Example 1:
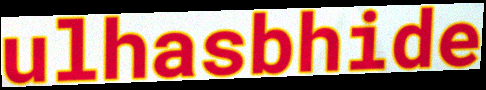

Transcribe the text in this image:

ulhasbhide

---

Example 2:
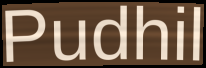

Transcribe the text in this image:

Pudhil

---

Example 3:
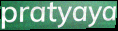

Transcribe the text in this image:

pratyaya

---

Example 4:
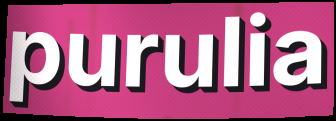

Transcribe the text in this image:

purulia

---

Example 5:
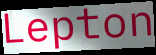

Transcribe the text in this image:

Lepton